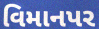
વિમાનપર